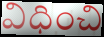
విధించి